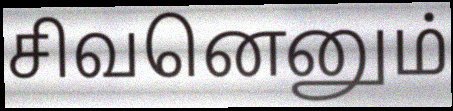
சிவனெனும்